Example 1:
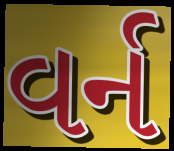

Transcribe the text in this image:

વર્ન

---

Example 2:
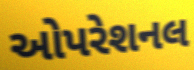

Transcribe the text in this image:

ઓપરેશનલ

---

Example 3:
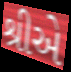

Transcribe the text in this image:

શ્રીએ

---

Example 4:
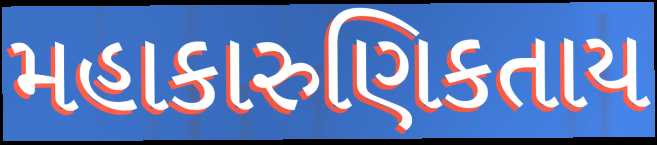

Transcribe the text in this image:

મહાકારુણિકતાય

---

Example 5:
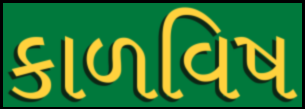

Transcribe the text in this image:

કાળવિષ